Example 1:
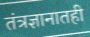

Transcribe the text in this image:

तंत्रज्ञानातही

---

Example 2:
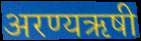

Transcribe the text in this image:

अरण्यऋषी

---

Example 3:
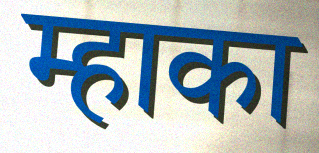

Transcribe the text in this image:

म्हाका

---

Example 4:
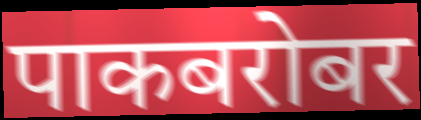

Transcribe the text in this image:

पाकबरोबर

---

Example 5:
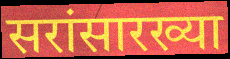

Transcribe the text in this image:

सरांसारख्या